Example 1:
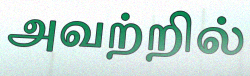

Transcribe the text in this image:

அவற்றில்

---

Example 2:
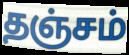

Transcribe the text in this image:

தஞ்சம்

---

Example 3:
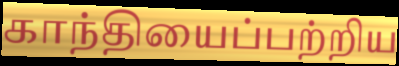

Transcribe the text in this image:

காந்தியைப்பற்றிய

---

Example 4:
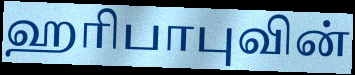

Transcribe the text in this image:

ஹரிபாபுவின்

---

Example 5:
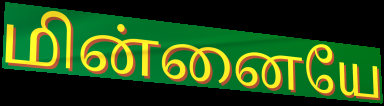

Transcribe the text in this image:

மின்னையே